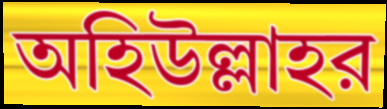
অহিউল্লাহর